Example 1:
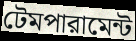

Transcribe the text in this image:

টেমপারামেন্ট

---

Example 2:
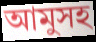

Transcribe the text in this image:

আমুসহ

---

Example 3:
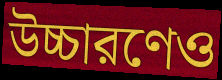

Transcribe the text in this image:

উচ্চারণেও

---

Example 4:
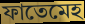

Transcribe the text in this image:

ফাতেমেহ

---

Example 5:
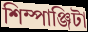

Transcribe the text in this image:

শিম্পাঞ্জিটা